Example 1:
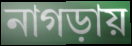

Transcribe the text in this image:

নাগড়ায়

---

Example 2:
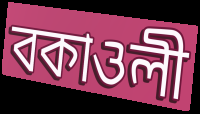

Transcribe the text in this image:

বকাওলী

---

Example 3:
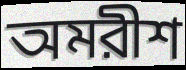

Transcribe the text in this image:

অমরীশ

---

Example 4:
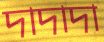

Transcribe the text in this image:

দাদাদা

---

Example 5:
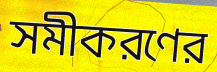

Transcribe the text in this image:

সমীকরণের